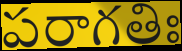
పరాగతిః